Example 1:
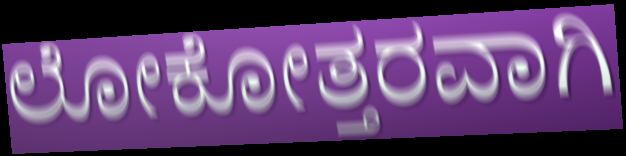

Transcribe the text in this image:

ಲೋಕೋತ್ತರವಾಗಿ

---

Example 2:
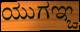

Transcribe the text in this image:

ಯುಗಞ್ಚ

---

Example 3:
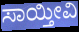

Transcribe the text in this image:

ಸಾಯ್ತೀವಿ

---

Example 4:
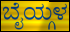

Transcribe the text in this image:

ಬೈಯ್ಗಳ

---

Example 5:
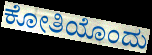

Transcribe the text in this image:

ಕೋತಿಯೊಂದು